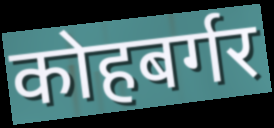
कोहबर्गर